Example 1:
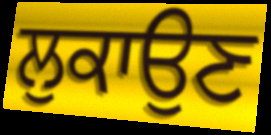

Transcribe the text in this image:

ਲੁਕਾਉਣ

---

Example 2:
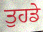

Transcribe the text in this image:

ਤੁਹਡੇ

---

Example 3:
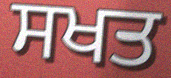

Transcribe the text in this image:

ਸਖਤ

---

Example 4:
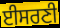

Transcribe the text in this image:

ਈਸਰਣੀ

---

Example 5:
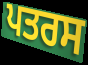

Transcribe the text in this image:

ਪਤਰਸ